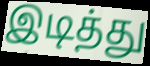
இடித்து